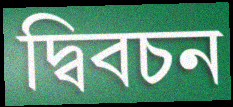
দ্বিবচন